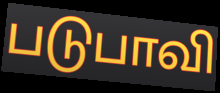
படுபாவி